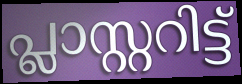
പ്ലാസ്റ്ററിട്ട്